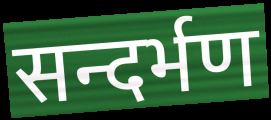
सन्दर्भण